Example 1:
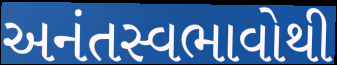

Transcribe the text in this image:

અનંતસ્વભાવોથી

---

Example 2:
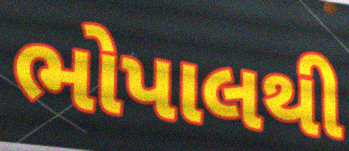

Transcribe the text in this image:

ભોપાલથી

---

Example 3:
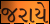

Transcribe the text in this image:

જરાયે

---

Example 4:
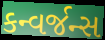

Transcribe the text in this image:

કન્વર્જન્સ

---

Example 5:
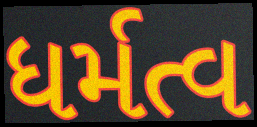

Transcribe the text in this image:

ધર્મત્વ